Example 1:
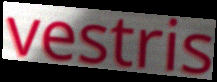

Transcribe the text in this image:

vestris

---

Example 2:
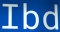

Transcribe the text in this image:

Ibd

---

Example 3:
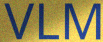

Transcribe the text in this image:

VLM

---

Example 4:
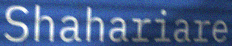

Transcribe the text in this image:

Shahariare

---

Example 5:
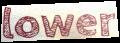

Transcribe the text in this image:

lower